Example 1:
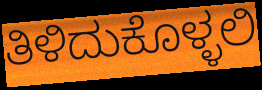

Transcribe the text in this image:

ತಿಳಿದುಕೊಳ್ಳಲಿ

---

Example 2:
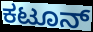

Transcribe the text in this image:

ಕಟೂನ್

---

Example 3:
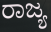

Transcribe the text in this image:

ರಾಜ್ಯ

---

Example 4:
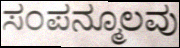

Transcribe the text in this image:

ಸಂಪನ್ಮೂಲವು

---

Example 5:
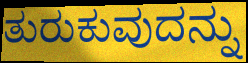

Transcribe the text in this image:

ತುರುಕುವುದನ್ನು